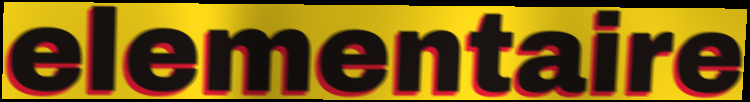
elementaire